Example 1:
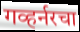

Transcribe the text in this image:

गव्हर्नरचा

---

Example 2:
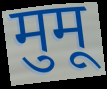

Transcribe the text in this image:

मुमू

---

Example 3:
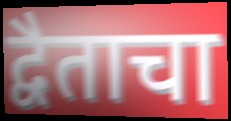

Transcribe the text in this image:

द्वैताचा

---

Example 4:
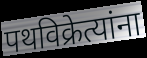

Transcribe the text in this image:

पथविक्रेत्यांना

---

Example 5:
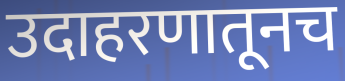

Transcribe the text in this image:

उदाहरणातूनच